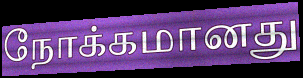
நோக்கமானது